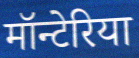
मॉन्टेरिया